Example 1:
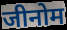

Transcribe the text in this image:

जीनोम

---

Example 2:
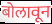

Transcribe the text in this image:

बोलावून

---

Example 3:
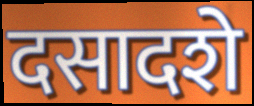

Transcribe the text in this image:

दसादशे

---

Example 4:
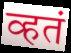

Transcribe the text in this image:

व्हतं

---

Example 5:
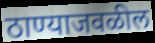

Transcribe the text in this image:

ठाण्याजवळील